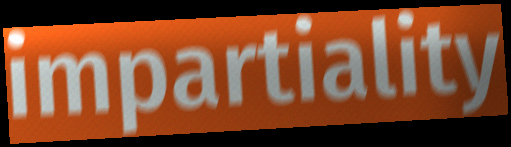
impartiality